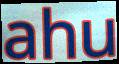
ahu